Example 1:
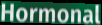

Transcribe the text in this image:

Hormonal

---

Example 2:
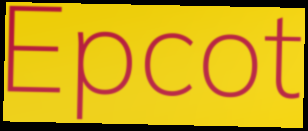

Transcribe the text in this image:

Epcot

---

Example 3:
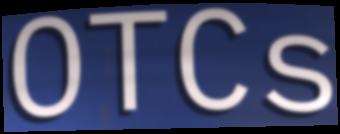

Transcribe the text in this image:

OTCs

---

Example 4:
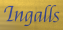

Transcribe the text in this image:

Ingalls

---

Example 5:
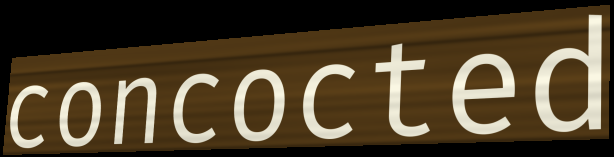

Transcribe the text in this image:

concocted